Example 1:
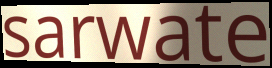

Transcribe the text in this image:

sarwate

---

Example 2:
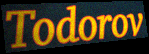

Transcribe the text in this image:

Todorov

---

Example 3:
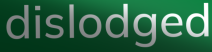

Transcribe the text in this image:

dislodged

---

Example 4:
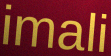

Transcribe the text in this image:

imali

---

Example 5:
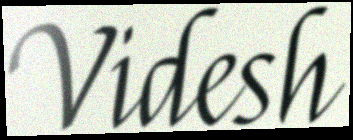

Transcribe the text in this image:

Videsh